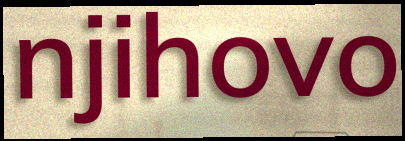
njihovo